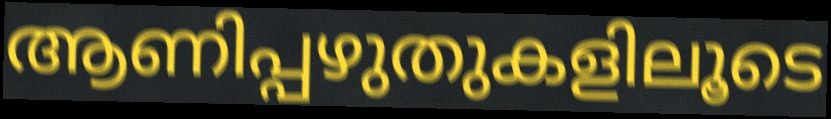
ആണിപ്പഴുതുകളിലൂടെ